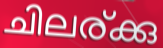
ചിലര്ക്കു